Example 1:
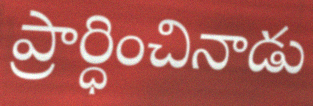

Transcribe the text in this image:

ప్రార్ధించినాడు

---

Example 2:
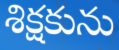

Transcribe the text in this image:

శిక్షకును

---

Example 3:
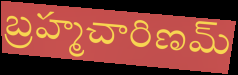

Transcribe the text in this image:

బ్రహ్మచారిణమ్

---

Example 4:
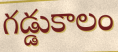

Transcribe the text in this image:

గడ్డుకాలం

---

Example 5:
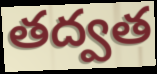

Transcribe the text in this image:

తద్వత